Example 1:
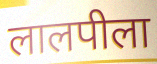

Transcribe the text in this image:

लालपीला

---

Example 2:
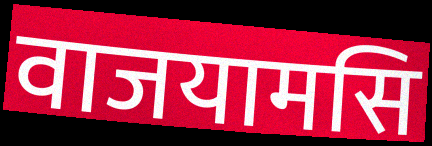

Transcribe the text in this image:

वाजयामसि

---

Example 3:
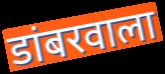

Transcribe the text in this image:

डांबरवाला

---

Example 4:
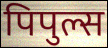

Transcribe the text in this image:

पिपुल्स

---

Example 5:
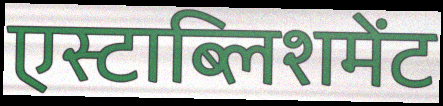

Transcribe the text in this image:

एस्टाब्लिशमेंट